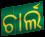
ଚାର୍ଲ